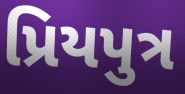
પ્રિયપુત્ર